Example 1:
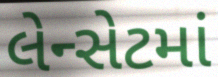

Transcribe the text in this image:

લેન્સેટમાં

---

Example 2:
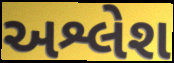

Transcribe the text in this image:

અશ્લેશ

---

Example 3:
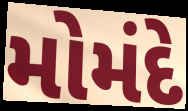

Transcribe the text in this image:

મોમંદે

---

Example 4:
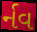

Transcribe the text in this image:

ર્નવ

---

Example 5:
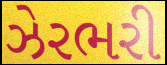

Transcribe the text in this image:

ઝેરભરી